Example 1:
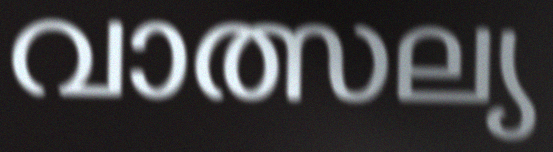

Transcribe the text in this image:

വാത്സല്യ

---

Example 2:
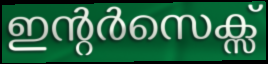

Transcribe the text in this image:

ഇന്റർസെക്സ്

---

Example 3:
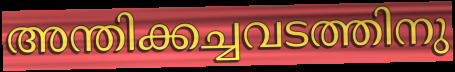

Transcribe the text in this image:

അന്തിക്കച്ചവടത്തിനു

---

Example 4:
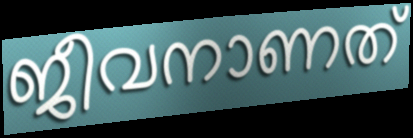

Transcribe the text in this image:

ജീവനാണത്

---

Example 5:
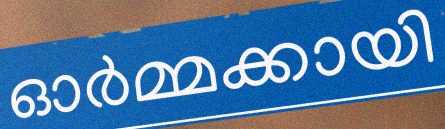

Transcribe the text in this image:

ഓർമ്മക്കായി